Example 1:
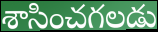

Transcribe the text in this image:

శాసించగలడు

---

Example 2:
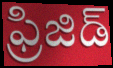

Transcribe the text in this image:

ఫ్రిజిడ్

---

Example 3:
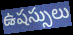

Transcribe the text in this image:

ఉషస్సులు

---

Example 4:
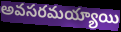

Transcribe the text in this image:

అవసరమయ్యాయి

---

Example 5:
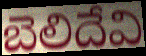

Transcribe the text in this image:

బెలిదేవి